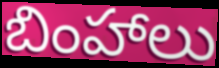
బింహాలు